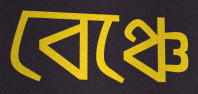
বেঞ্চে